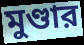
মুণ্ডার